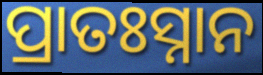
ପ୍ରାତଃସ୍ନାନ